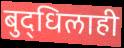
बुद्धिलाही